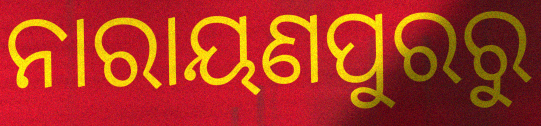
ନାରାୟଣପୁରରୁ